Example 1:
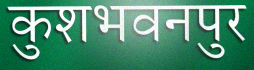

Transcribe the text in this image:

कुशभवनपुर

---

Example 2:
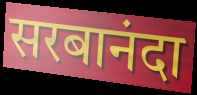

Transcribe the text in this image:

सरबानंदा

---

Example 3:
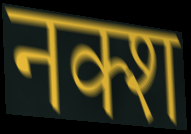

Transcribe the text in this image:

नक्श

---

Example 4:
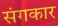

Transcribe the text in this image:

संगकार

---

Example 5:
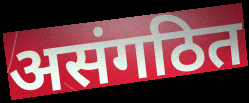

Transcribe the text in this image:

असंगठित